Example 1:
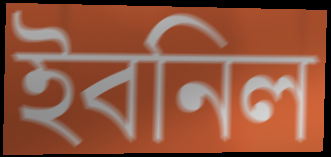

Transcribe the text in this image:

ইবনিল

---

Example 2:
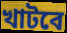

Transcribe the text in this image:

খাটবে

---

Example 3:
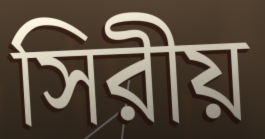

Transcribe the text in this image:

সিরীয়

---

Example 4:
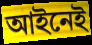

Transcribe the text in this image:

আইনেই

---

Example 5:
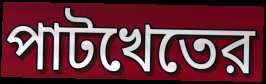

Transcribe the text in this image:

পাটখেতের